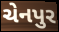
ચેનપુર